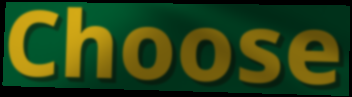
Choose